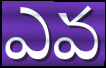
ఎవ